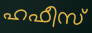
ഹഫീസ്